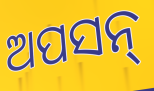
ଅପସନ୍